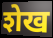
शेख